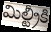
మిల్ట్రీకి